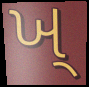
ખ્